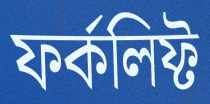
ফর্কলিফ্ট